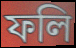
ফলি